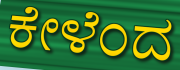
ಕೇಳೆಂದ